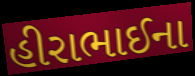
હીરાભાઈના